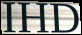
IHD